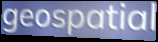
geospatial